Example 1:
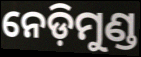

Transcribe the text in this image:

ନେଡ଼ିମୁଣ୍ଡ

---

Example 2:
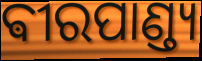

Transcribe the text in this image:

ଵୀରପାଣ୍ଡ୍ୟ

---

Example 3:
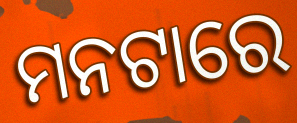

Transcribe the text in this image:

ମନଟାରେ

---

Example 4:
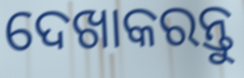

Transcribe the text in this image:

ଦେଖାକରନ୍ତୁ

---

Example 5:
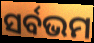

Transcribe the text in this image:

ସର୍ବଭମ